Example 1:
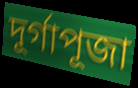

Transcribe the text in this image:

দূর্গাপূজা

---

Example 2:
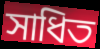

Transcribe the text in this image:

সাধিত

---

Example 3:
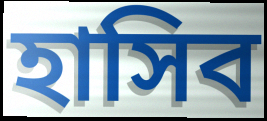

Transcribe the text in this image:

হাসিব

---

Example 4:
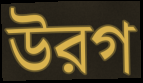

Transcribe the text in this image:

উরগ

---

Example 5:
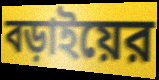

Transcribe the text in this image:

বড়াইয়ের